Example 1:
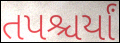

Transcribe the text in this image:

તપશ્ચર્યાં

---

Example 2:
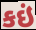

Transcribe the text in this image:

કઇં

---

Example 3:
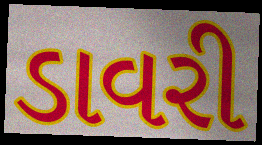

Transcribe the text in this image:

ડાવરી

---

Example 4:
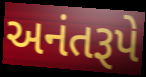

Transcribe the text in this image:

અનંતરૂપે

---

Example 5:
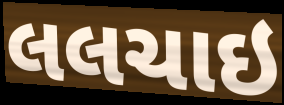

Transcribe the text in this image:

લલચાઇ